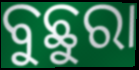
ବୁଛୁରା